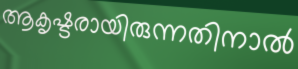
ആകൃഷ്ടരായിരുന്നതിനാൽ